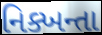
નિક્ખન્તા